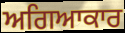
ਅਗਿਆਕਾਰ